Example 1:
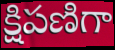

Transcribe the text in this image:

క్షిపణిగా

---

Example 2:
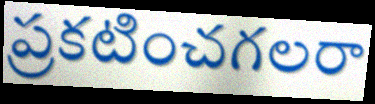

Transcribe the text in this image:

ప్రకటించగలరా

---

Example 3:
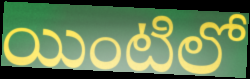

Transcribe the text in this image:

యింటిలో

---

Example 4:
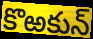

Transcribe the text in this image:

కొఱకున్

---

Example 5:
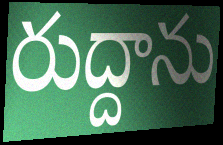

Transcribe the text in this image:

రుద్దాను